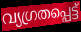
വ്യഗ്രതപ്പെട്ട്